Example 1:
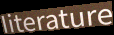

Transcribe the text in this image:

Iiterature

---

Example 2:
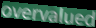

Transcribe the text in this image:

overvalued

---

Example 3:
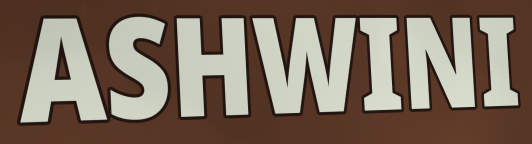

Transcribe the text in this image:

ASHWINI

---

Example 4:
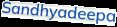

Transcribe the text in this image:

Sandhyadeepa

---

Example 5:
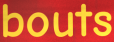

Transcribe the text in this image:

bouts